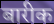
बारीक